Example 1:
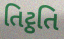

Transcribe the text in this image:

તિટ્ઠતિ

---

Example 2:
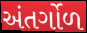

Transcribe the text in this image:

અંતર્ગોળ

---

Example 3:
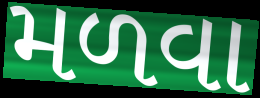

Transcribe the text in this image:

મળવા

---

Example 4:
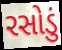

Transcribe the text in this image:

રસોડું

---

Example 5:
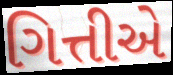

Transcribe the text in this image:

ગિત્તીએ